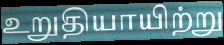
உறுதியாயிற்று